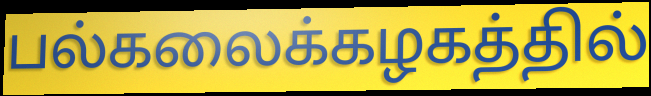
பல்கலைக்கழகத்தில்